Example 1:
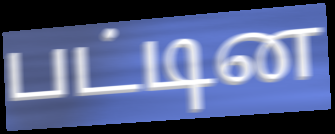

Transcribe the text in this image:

பட்டின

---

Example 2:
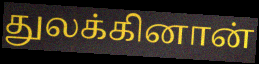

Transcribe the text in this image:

துலக்கினான்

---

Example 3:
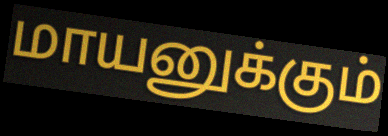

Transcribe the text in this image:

மாயனுக்கும்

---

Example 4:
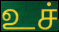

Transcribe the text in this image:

உச்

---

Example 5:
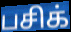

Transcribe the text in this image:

பசிக்